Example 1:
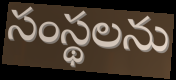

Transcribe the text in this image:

సంస్థలను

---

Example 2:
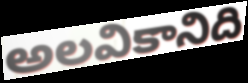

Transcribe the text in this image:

అలవికానిది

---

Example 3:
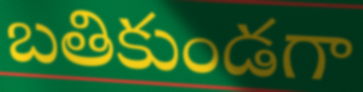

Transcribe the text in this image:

బతికుండగా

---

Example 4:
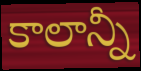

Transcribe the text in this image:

కాలాన్నీ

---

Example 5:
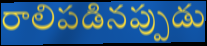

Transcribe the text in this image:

రాలిపడినప్పుడు